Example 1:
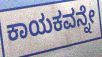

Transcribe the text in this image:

ಕಾಯಕವನ್ನೇ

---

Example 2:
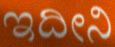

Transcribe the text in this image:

ಇದೀನಿ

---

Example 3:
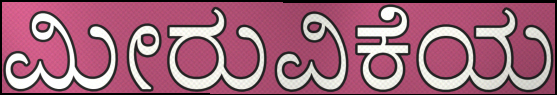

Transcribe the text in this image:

ಮೀರುವಿಕೆಯ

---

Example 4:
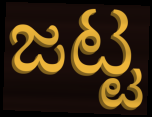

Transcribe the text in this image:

ಜಟ್ಟ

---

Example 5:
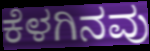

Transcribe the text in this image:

ಕೆಳಗಿನವು